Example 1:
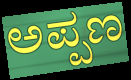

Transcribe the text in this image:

ಅಪ್ಪಣ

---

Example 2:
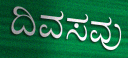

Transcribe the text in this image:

ದಿವಸವು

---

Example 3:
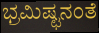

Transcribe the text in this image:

ಭ್ರಮಿಷ್ಟನಂತೆ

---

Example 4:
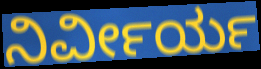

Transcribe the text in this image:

ನಿರ್ವೀರ್ಯ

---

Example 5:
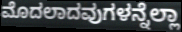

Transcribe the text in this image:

ಮೊದಲಾದವುಗಳನ್ನೆಲ್ಲಾ